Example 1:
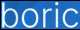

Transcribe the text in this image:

boric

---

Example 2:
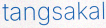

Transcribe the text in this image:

tangsakal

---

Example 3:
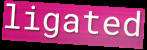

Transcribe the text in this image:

ligated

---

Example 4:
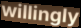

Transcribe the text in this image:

willingly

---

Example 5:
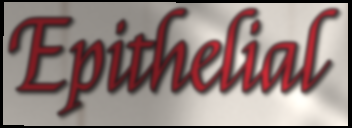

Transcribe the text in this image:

Epithelial